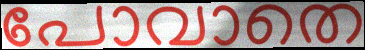
പോവാതെ